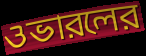
ওভারলের